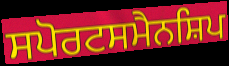
ਸਪੋਰਟਸਮੈਨਸ਼ਿਪ